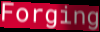
Forging